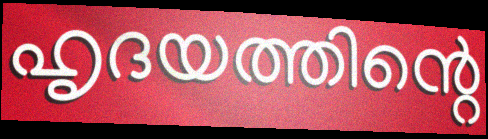
ഹൃദയത്തിന്റെ